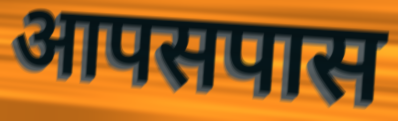
आपसपास